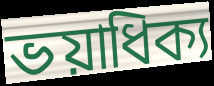
ভয়াধিক্য